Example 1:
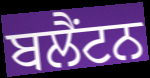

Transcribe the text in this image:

ਬਲੈਂਟਨ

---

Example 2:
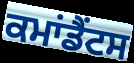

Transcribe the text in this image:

ਕਮਾਂਡੈਂਟਸ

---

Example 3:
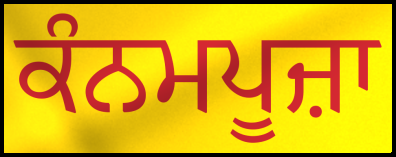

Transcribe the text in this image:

ਕੰਨਮਪੂਜ਼ਾ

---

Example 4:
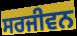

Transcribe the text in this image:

ਸਰਜੀਵਨ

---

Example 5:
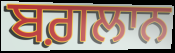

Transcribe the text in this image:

ਬਗ਼ਲਾਨ